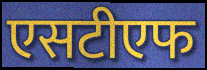
एसटीएफ